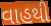
વાહથી